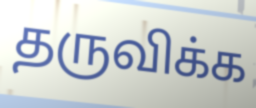
தருவிக்க